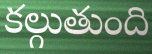
కల్గుతుంది